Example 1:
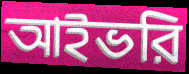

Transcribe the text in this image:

আইভরি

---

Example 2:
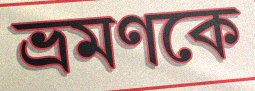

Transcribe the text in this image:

ভ্রমণকে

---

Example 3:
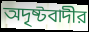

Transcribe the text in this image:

অদৃষ্টবাদীর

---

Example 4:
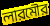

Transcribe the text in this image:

লারমৌর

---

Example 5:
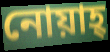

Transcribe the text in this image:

নোয়াহ্